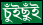
চুঁইছুঁই